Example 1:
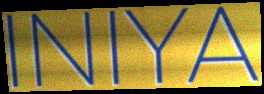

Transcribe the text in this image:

INIYA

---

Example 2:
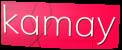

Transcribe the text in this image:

kamay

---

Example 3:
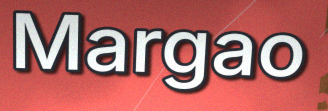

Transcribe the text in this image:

Margao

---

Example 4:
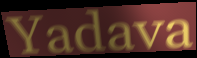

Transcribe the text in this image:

Yadava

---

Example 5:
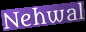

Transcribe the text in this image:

Nehwal